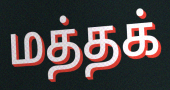
மத்தக்